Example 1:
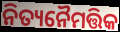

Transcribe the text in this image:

ନିତ୍ୟନୈମତ୍ତିକ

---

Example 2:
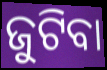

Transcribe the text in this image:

ଜୁଟିବା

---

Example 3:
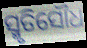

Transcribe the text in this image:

ସ୍ମୃତିସୌଧ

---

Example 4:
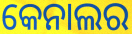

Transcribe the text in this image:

କେନାଲର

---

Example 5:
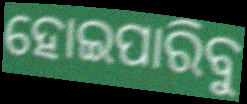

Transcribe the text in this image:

ହୋଇପାରିବୁ